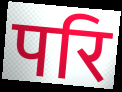
परि